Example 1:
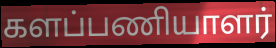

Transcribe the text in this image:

களப்பணியாளர்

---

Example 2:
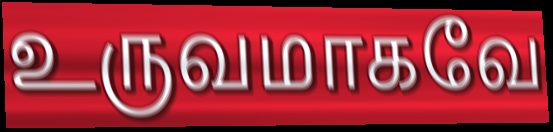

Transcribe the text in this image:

உருவமாகவே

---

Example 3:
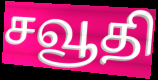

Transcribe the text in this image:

சவூதி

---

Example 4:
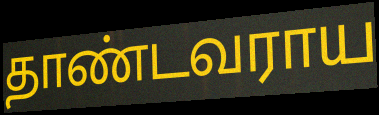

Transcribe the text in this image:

தாண்டவராய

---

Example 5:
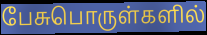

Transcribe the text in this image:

பேசுபொருள்களில்